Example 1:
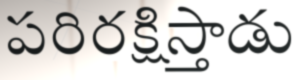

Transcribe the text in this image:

పరిరక్షిస్తాడు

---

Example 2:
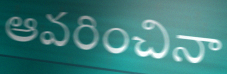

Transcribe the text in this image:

ఆవరించినా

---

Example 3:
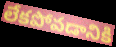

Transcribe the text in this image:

లేకపోవడానికి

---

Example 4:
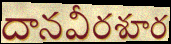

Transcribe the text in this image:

దానవీరశూర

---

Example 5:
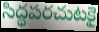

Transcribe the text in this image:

సిద్ధపరచుటకై